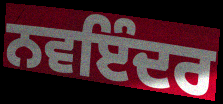
ਨਵਇੰਦਰ